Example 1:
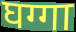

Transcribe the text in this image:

घग्गा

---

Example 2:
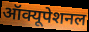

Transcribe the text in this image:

ऑक्यूपेशनल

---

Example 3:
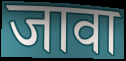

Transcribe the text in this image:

जावा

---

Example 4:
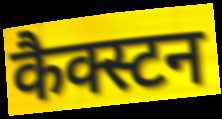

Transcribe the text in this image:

कैक्स्टन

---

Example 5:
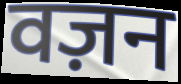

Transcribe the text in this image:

वज़न